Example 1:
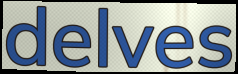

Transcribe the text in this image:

delves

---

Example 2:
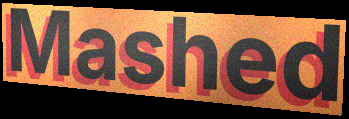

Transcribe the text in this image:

Mashed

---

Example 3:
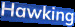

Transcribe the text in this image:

Hawking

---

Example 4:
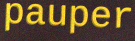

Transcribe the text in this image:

pauper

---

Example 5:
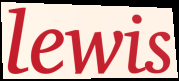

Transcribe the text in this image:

lewis